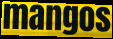
mangos